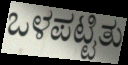
ಒಳಪಟ್ಟಿತು